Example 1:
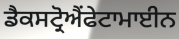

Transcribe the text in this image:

ਡੈਕਸਟ੍ਰੋਐਂਫੇਟਾਮਾਈਨ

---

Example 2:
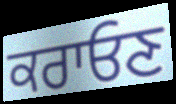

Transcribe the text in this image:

ਕਰਾਓਣ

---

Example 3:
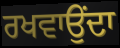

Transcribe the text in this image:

ਰਖਵਾਉਂਦਾ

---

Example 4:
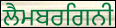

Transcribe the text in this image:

ਲੈਮਬਰਗਿਨੀ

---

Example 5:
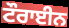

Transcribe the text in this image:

ਟੌਰਾਈਨ